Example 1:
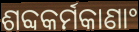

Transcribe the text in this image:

ଶବ୍ଦକର୍ମକାଣାଂ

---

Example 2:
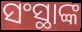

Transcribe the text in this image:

ସଂସ୍ଥାଙ୍କ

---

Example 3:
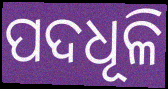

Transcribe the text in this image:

ପଦଧୂଳି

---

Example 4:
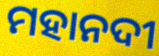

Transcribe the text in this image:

ମହାନଦୀ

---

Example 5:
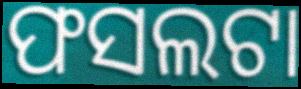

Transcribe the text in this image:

ଫସଲଟା